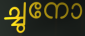
ച്ചുനോ